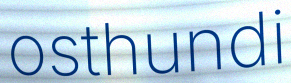
osthundi